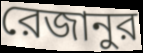
রেজানুর